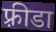
फ़्रीडा